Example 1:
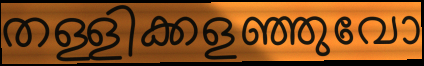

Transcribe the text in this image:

തള്ളിക്കളഞ്ഞുവോ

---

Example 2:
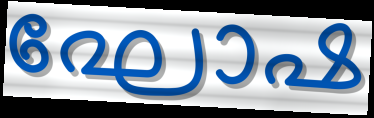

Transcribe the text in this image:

ഘോഷ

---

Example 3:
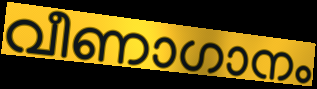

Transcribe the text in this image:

വീണാഗാനം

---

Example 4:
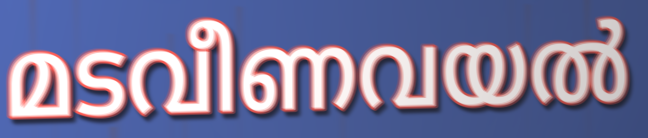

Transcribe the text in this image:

മടവീണവയൽ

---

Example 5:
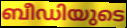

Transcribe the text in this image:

ബീഡിയുടെ